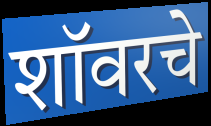
शॉवरचे